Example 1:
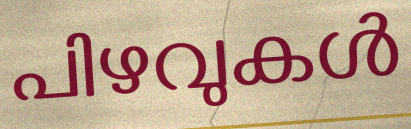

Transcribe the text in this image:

പിഴവുകൾ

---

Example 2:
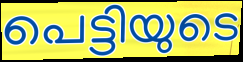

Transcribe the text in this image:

പെട്ടിയുടെ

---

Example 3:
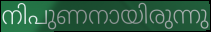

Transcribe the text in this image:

നിപുണനായിരുന്നു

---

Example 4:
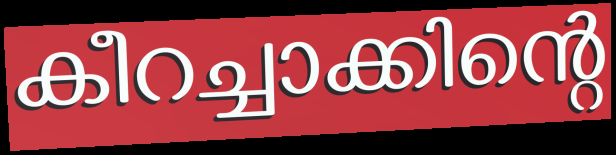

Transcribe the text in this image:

കീറച്ചാക്കിന്റെ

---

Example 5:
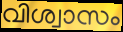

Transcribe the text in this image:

വിശ്വാസം